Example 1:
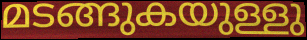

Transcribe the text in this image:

മടങ്ങുകയുള്ളു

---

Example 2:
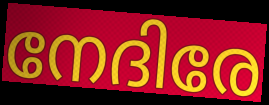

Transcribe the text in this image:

നേദിരേ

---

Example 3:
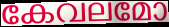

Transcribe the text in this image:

കേവലമോ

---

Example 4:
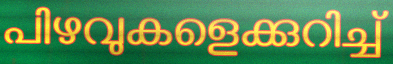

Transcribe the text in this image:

പിഴവുകളെക്കുറിച്ച്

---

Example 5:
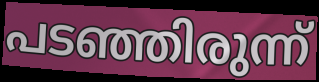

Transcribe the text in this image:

പടഞ്ഞിരുന്ന്